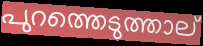
പുറത്തെടുത്താല്